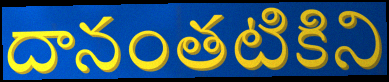
దానంతటికిని